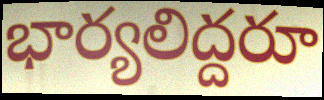
భార్యలిద్దరూ